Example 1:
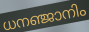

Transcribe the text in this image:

ധനഞ്ജാനിം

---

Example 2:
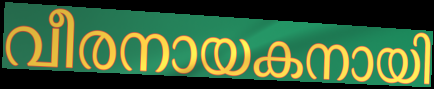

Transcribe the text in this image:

വീരനായകനായി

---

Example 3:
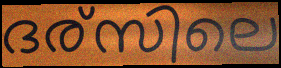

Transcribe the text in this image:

ദര്സിലെ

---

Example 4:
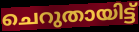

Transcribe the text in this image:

ചെറുതായിട്ട്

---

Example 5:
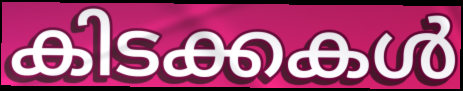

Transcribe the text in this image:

കിടക്കകൾ